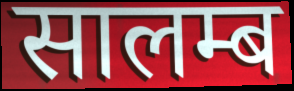
सालम्ब